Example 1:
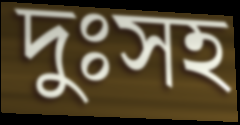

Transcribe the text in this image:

দুঃসহ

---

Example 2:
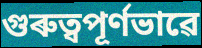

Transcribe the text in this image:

গুৰুত্বপূৰ্ণভাৱে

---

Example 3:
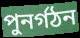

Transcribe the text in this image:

পুনৰ্গঠন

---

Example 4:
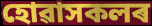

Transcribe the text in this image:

হোৱাসকলৰ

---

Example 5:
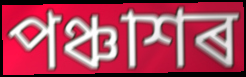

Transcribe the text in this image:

পঞ্চাশৰ